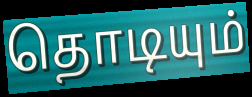
தொடியும்